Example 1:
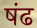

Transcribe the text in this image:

षंढ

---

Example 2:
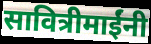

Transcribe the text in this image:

सावित्रीमाईंनी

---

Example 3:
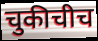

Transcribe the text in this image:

चुकीचीच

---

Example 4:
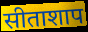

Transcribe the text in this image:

सीताशाप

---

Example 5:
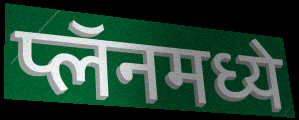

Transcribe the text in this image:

प्लॅनमध्ये